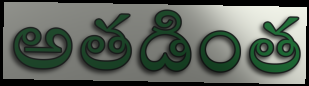
అతడింత